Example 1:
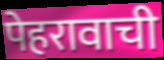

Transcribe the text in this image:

पेहरावाची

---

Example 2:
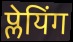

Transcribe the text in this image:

प्लेयिंग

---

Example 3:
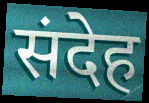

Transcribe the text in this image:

संदेह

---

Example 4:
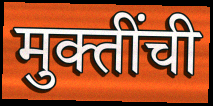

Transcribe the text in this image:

मुक्तींची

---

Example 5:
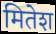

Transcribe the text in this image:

मितेश